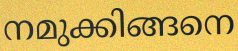
നമുക്കിങ്ങനെ